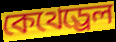
কেথেড্ৰেল